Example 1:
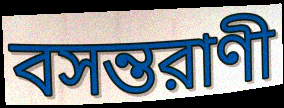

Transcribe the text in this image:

বসন্তরাণী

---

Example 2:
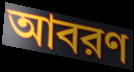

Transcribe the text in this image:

আবরণ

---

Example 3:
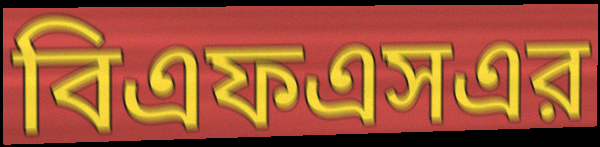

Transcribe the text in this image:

বিএফএসএর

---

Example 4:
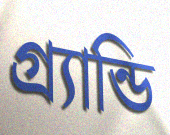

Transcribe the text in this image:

গ্র্যান্ডি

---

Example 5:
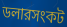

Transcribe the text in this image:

ডলারসংকট